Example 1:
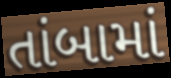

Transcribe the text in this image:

તાંબામાં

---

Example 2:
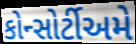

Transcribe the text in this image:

કોન્સોર્ટીઅમે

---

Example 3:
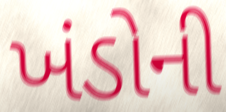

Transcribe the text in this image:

ખંડોની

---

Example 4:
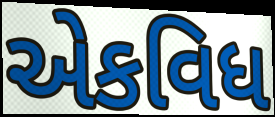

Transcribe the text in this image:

એકવિધ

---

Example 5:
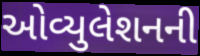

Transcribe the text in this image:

ઓવ્યુલેશનની